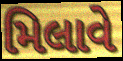
મિલાવે